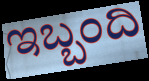
ಇಬ್ಬಂದಿ